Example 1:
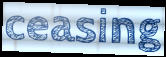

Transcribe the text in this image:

ceasing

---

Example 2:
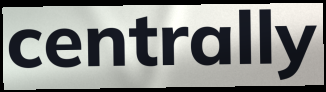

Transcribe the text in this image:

centrally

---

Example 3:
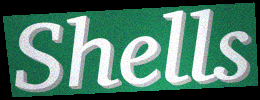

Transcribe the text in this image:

Shells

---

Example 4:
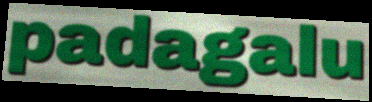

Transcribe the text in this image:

padagalu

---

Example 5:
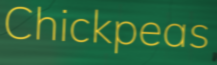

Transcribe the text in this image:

Chickpeas